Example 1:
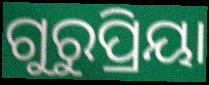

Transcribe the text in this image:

ଗୁରୁପ୍ରିୟା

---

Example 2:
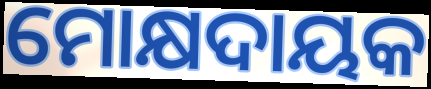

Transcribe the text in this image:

ମୋକ୍ଷଦାୟକ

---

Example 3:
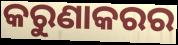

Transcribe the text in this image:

କରୁଣାକରର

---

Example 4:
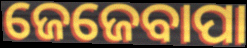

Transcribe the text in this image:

ଜେଜେବାପା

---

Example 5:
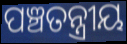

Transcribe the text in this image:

ପଞ୍ଚତନ୍ତ୍ରୀୟ